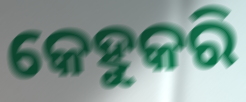
କେହୁକରି